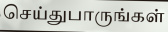
செய்துபாருங்கள்